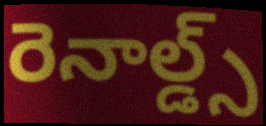
రెనాల్డ్స్